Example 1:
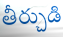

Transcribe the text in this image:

తీర్చుడి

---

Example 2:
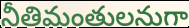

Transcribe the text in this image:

నీతిమంతులనుగా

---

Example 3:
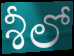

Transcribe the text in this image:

శీలో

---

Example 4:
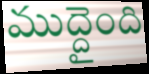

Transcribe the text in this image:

ముద్దైంది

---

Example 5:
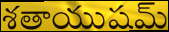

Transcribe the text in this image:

శతాయుషమ్